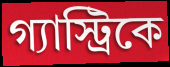
গ্যাস্ট্রিকে